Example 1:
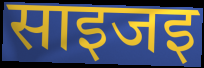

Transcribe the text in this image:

साइजइ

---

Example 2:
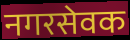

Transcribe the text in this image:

नगरसेवक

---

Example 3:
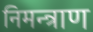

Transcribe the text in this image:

निमन्त्राण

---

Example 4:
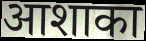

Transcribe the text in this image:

आशाका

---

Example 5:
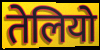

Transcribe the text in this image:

तेलियो